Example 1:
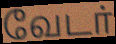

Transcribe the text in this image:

வேடர்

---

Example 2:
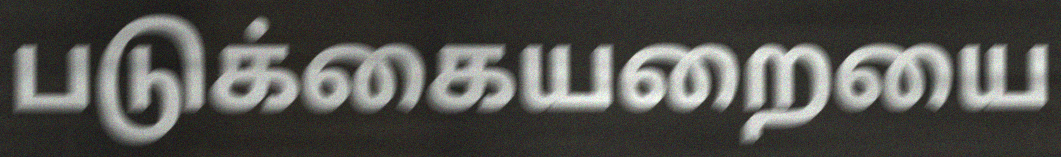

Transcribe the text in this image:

படுக்கையறையை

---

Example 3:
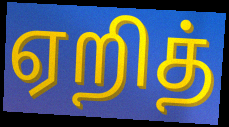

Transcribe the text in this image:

ஏறித்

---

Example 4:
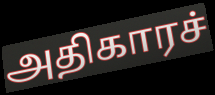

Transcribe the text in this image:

அதிகாரச்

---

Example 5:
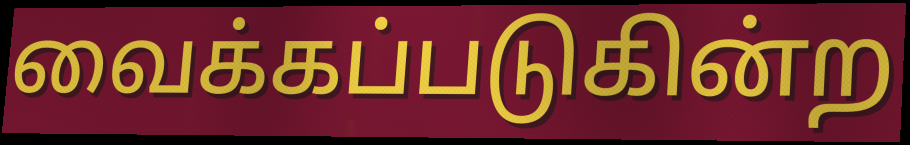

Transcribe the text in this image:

வைக்கப்படுகின்ற